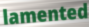
lamented